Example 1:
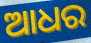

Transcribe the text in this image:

ଆଧର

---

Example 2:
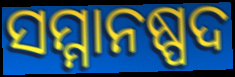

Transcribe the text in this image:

ସମ୍ମାନଷ୍ପଦ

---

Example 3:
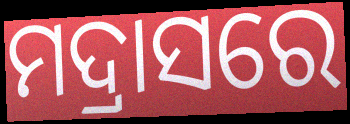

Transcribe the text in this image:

ମଦ୍ରାସରେ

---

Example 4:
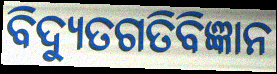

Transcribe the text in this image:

ବିଦ୍ୟୁତଗତିବିଜ୍ଞାନ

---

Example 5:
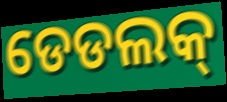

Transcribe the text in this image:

ଡେଡଲକ୍